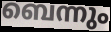
ബെന്നും